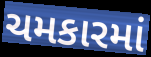
ચમકારમાં